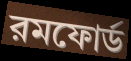
রমফোর্ড